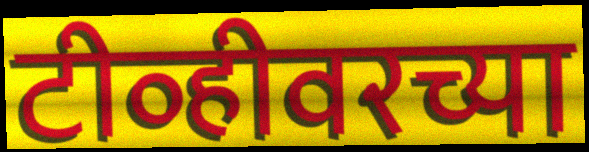
टीव्हीवरच्या